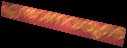
എന്താണവയുടെ